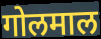
गोलमाल